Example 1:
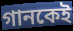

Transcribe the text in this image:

গানকেই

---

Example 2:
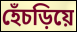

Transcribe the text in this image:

হেঁচড়িয়ে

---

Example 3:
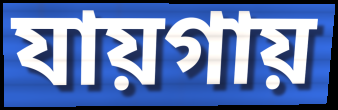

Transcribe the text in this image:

যায়গায়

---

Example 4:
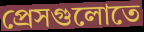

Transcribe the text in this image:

প্রেসগুলোতে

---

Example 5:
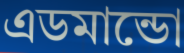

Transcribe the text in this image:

এডমান্ডো